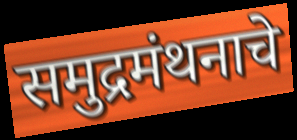
समुद्रमंथनाचे